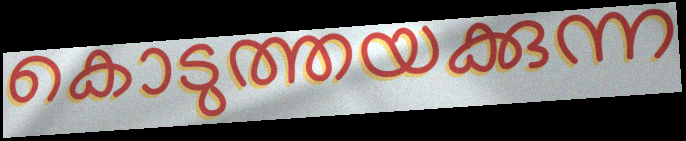
കൊടുത്തയക്കുന്ന